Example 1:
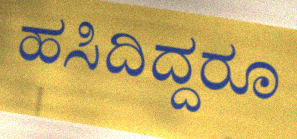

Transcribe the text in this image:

ಹಸಿದಿದ್ದರೂ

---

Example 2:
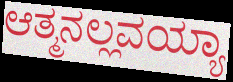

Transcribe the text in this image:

ಆತ್ಮನಲ್ಲವಯ್ಯಾ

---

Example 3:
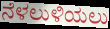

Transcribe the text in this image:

ನೆಳಲುಳಿಯಲು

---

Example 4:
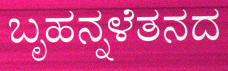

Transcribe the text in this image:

ಬೃಹನ್ನಳೆತನದ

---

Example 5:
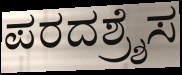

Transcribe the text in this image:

ಪರದಶ್ರ್ಶೆಸ